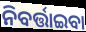
ନିବର୍ତ୍ତାଇବା